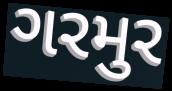
ગરમુર